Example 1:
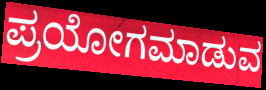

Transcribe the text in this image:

ಪ್ರಯೋಗಮಾಡುವ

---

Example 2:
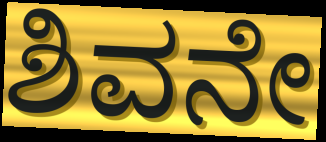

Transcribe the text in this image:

ಶಿವನೇ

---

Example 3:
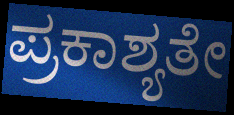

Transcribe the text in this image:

ಪ್ರಕಾಶ್ಯತೇ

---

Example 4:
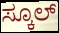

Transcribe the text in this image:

ಸ್ಕೂಲ್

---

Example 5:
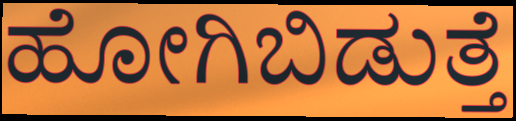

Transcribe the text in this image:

ಹೋಗಿಬಿಡುತ್ತೆ